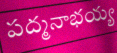
పద్మనాభయ్య